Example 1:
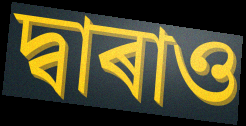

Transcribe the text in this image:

দ্বাৰাও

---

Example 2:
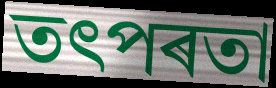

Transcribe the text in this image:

তৎপৰতা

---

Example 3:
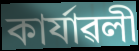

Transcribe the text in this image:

কাৰ্যাৱলী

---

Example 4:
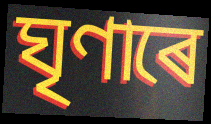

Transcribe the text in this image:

ঘৃণাৰে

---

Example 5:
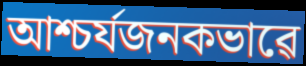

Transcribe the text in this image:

আশ্চৰ্যজনকভাৱে